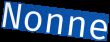
Nonne